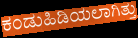
ಕಂಡುಹಿಡಿಯಲಾಗಿತ್ತು